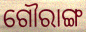
ଗୌରାଙ୍ଗ